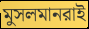
মুসলমানরাই